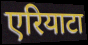
एरियाटा